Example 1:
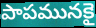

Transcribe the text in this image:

పాపమునకై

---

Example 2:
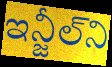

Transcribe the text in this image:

ఇన్జీల్‌ని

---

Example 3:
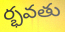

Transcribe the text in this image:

ర్భవతు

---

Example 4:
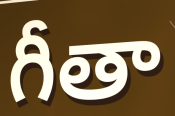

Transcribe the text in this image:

గీతా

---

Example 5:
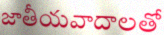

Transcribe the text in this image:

జాతీయవాదాలతో